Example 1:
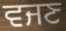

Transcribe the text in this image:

ਵਜਣ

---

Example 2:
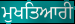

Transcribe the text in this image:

ਮੁਖਤਿਆਰੀ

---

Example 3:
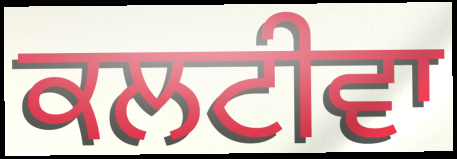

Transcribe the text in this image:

ਕਲਟੀਵਾ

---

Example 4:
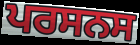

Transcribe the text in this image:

ਪਰਸਨਸ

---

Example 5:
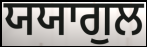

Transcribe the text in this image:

ਯਯਾਗੁਲ